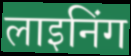
लाइनिंग